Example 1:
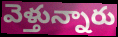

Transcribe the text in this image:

వెళ్తున్నారు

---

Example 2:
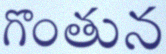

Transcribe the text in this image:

గొంతున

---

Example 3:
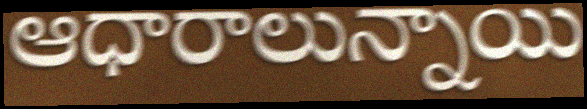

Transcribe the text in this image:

ఆధారాలున్నాయి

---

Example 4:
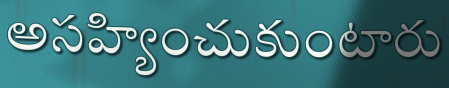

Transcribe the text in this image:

అసహ్యించుకుంటారు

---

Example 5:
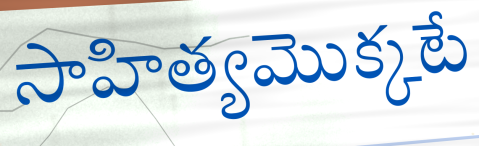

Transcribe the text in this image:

సాహిత్యమొక్కటే